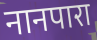
नानपारा